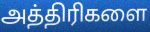
அத்திரிகளை